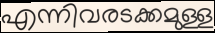
എന്നിവരടക്കമുള്ള